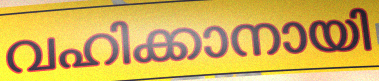
വഹിക്കാനായി